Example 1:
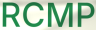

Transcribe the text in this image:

RCMP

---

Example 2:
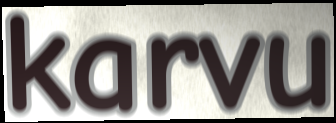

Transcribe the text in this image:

karvu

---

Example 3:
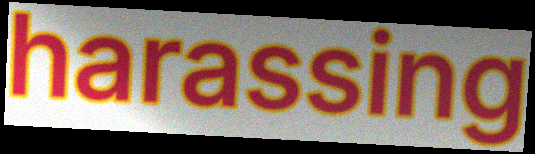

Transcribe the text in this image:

harassing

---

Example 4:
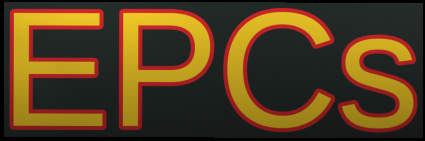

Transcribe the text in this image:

EPCs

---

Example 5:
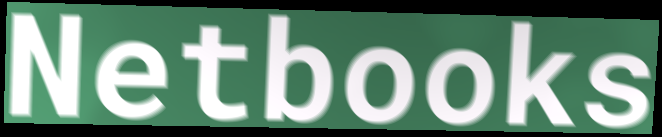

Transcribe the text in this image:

Netbooks